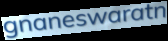
gnaneswaratn